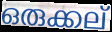
ഒരുക്കല്